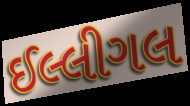
ઈલ્લીગલ